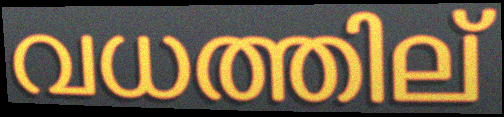
വധത്തില്